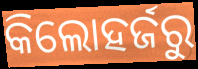
କିଲୋହର୍ଜରୁ